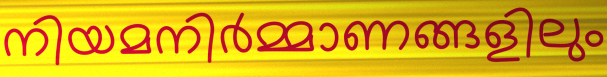
നിയമനിർമ്മാണങ്ങളിലും